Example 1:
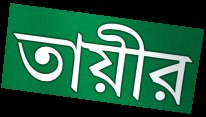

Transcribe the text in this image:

তায়ীর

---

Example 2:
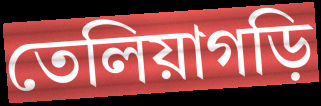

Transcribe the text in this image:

তেলিয়াগড়ি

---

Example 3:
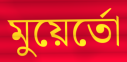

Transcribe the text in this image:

মুয়ের্তো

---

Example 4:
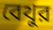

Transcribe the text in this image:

বেথুর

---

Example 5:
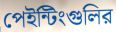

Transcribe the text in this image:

পেইন্টিংগুলির